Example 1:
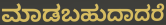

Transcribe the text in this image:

ಮಾಡಬಹುದಾದರೆ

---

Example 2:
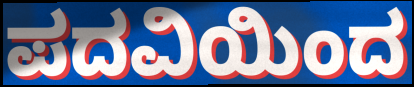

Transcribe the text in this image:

ಪದವಿಯಿಂದ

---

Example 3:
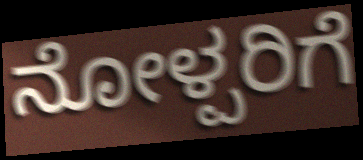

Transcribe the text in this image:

ನೋಳ್ಪರಿಗೆ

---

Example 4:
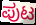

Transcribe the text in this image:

ಪುಟ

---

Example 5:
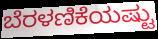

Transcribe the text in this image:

ಬೆರಳಣಿಕೆಯಷ್ಟು